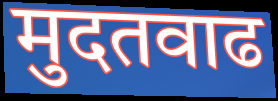
मुदतवाढ